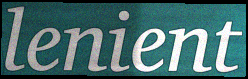
lenient